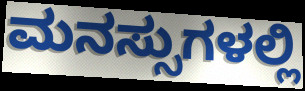
ಮನಸ್ಸುಗಳಲ್ಲಿ